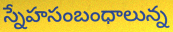
స్నేహసంబంధాలున్న